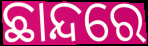
ଛାନ୍ଦରେ